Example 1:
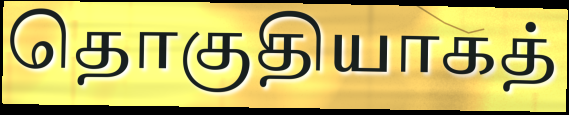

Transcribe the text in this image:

தொகுதியாகத்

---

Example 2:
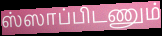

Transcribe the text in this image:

ஸ்ஸாப்பிடணும்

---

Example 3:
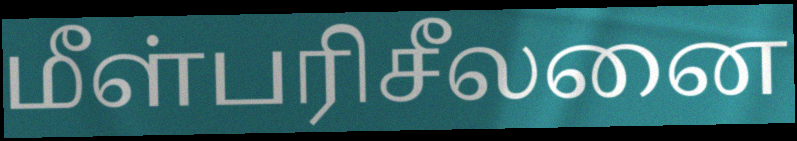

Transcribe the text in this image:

மீள்பரிசீலனை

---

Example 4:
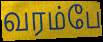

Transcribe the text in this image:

வரம்பே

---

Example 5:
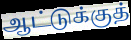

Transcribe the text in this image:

ஆட்டுக்குத்